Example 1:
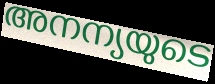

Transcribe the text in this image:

അനന്യയുടെ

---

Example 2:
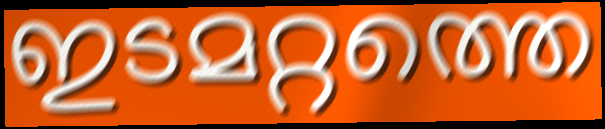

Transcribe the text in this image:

ഇടമറ്റത്തെ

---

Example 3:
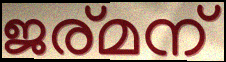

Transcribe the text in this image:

ജര്മന്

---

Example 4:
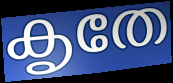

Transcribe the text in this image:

കൃതേ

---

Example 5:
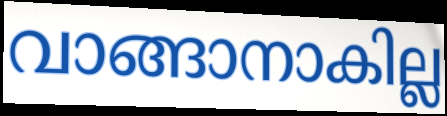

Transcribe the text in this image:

വാങ്ങാനാകില്ല